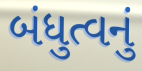
બંધુત્વનું